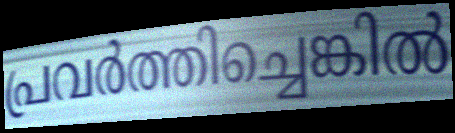
പ്രവർത്തിച്ചെങ്കിൽ